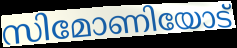
സിമോണിയോട്